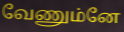
வேணும்னே